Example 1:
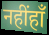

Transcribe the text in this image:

नहींहाँ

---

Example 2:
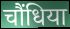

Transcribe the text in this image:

चौंधिया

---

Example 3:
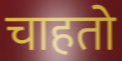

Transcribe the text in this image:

चाहतो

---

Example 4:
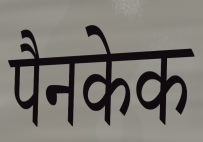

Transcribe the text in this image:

पैनकेक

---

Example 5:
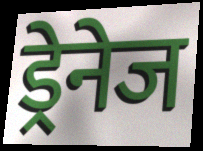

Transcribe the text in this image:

ड्रेनेज